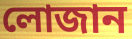
লোজান